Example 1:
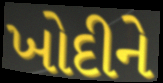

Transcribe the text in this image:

ખોદીને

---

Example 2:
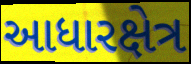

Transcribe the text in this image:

આધારક્ષેત્ર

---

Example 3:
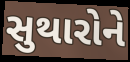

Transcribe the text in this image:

સુથારોને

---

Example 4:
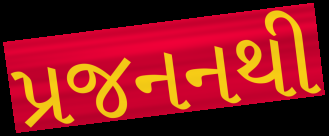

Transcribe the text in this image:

પ્રજનનથી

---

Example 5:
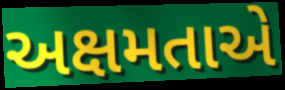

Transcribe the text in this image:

અક્ષમતાએ